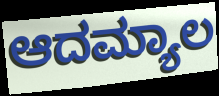
ಆದಮ್ಯಾಲ